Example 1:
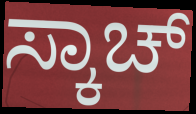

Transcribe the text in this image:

ಸ್ಕಾಚ್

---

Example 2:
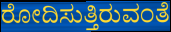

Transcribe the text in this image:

ರೋದಿಸುತ್ತಿರುವಂತೆ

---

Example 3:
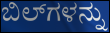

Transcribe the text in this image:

ಬಿಲ್‌ಗಳನ್ನು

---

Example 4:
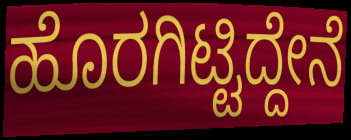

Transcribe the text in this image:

ಹೊರಗಿಟ್ಟಿದ್ದೇನೆ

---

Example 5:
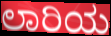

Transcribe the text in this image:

ಲಾರಿಯ